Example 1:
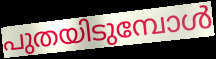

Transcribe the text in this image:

പുതയിടുമ്പോൾ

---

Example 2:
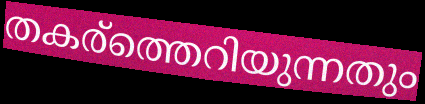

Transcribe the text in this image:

തകര്ത്തെറിയുന്നതും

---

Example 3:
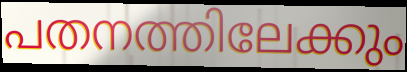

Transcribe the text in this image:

പതനത്തിലേക്കും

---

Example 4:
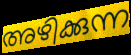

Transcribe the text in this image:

അഴിക്കുന്ന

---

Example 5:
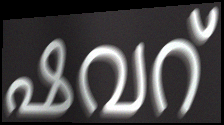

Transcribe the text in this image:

ഷവറ്